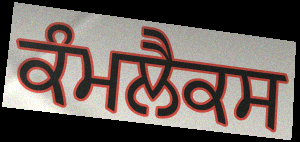
ਕੰਮਲੈਕਸ